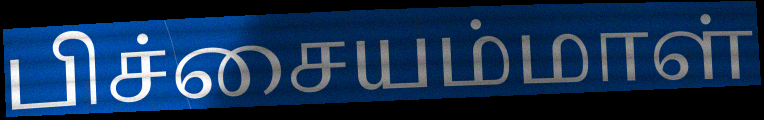
பிச்சையம்மாள்